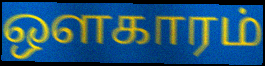
ஔகாரம்